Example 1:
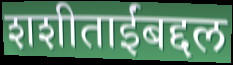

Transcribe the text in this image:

शशीताईंबद्दल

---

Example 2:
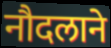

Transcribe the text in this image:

नौदलाने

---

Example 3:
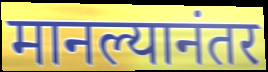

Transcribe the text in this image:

मानल्यानंतर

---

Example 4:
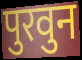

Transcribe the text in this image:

पुरवुन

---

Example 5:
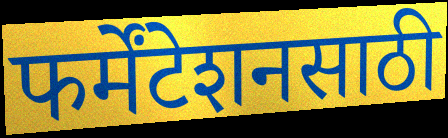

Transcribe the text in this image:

फर्मेंटेशनसाठी